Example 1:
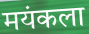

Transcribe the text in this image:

मयंकला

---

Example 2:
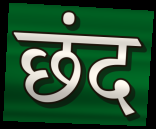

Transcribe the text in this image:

छंद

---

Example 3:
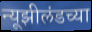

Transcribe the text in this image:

न्यूझीलंडच्या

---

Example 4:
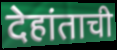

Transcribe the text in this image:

देहांताची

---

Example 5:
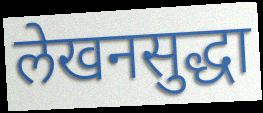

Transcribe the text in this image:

लेखनसुद्धा